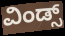
ವಿಂಡ್ಸ್